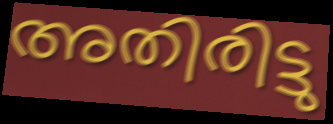
അതിരിട്ടു